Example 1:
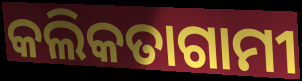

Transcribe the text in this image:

କଲିକତାଗାମୀ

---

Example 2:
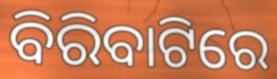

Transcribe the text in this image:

ବିରିବାଟିରେ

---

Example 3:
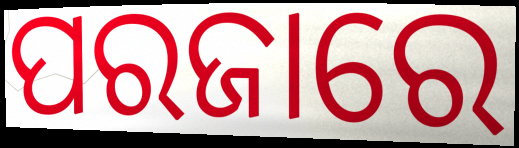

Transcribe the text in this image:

ପରଜାରେ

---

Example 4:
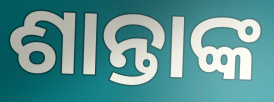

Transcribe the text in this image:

ଶାନ୍ତାଙ୍କ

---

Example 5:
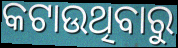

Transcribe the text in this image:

କଟାଉଥିବାରୁ